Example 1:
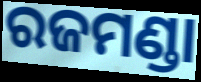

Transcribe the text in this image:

ରଜମଣ୍ଡା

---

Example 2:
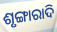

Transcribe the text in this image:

ଶୃଙ୍ଗାରାଦି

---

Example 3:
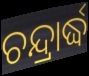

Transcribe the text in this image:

ଚନ୍ଦ୍ରାର୍ଦ୍ଧ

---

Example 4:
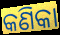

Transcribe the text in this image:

କଣିକା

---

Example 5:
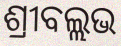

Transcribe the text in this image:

ଶ୍ରୀବଲ୍ଲଭ